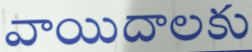
వాయిదాలకు